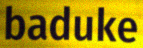
baduke